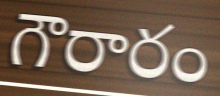
గౌరారం